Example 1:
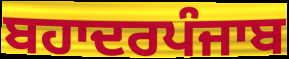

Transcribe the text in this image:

ਬਹਾਦਰਪੰਜਾਬ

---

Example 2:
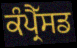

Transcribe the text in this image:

ਕੰਪ੍ਰੈੱਸਡ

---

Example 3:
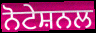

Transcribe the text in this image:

ਨੋਟੇਸ਼ਨਲ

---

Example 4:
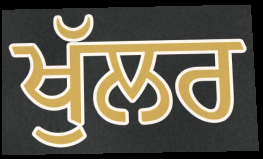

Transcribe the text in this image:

ਖੁੱਲਰ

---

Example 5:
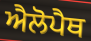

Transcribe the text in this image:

ਐਲੋਪੈਥ